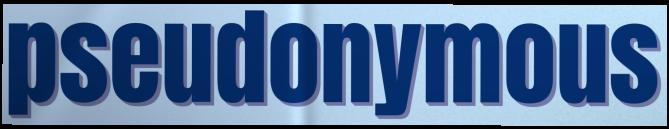
pseudonymous